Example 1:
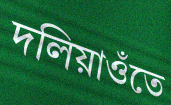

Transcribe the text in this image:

দলিয়াওঁতে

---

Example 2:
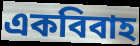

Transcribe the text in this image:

একবিবাহ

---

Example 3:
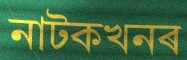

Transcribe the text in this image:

নাটকখনৰ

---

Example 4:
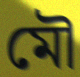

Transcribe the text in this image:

মৌ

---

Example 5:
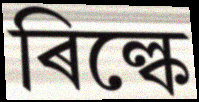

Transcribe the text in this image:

ৰিল্কে